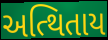
અત્થિતાય